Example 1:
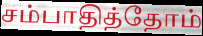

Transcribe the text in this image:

சம்பாதித்தோம்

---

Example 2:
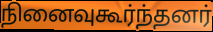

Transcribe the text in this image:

நினைவுகூர்ந்தனர்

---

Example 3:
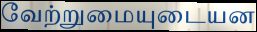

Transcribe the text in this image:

வேற்றுமையுடையன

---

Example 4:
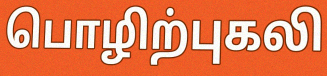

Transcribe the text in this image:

பொழிற்புகலி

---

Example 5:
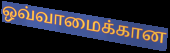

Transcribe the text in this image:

ஒவ்வாமைக்கான